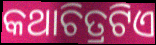
କଥାଚିତ୍ରଟିଏ